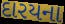
દારયના